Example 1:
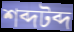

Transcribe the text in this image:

শব্দটব্দ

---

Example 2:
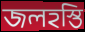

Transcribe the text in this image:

জলহস্তি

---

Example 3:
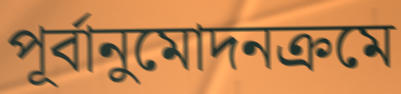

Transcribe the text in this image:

পূর্বানুমোদনক্রমে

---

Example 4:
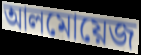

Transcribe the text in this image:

আলমোয়েজ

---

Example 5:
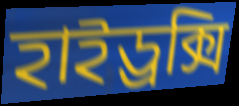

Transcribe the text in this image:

হাইড্রক্সি